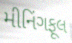
મીનિંગફૂલ